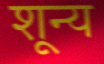
शून्य